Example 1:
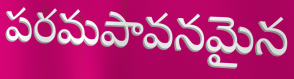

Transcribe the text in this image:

పరమపావనమైన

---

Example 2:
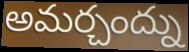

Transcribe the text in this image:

అమర్చంద్ను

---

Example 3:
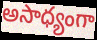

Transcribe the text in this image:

అసాధ్యంగా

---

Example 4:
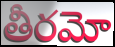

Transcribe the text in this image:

తీరమో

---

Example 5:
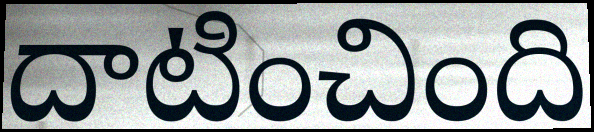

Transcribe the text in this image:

దాటించింది